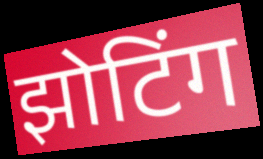
झोटिंग